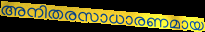
അനിതരസാധാരണമായ